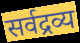
सर्वद्रव्य